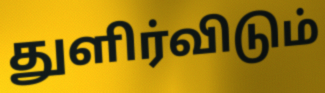
துளிர்விடும்